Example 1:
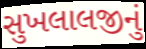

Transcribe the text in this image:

સુખલાલજીનું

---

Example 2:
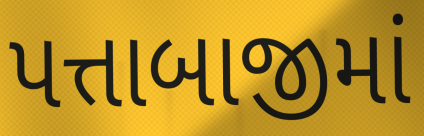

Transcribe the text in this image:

પત્તાબાજીમાં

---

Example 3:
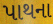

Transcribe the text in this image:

પાથના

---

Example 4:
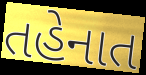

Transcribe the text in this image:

તહેનાત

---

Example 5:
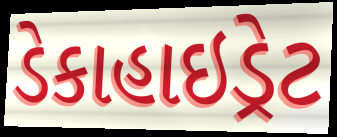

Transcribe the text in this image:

ડેકાહાઇડ્રેટ